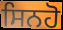
ਸਿਨਹੋ